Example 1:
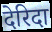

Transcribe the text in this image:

देरिदा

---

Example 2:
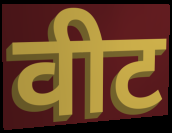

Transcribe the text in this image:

वीट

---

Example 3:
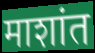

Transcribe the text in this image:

माशांत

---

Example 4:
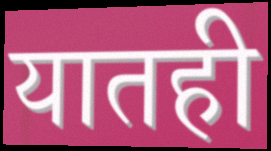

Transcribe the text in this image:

यातही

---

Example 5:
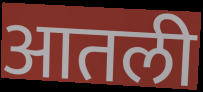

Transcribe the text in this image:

आतली